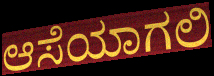
ಆಸೆಯಾಗಲಿ